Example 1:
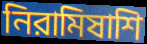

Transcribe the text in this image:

নিরামিষাশি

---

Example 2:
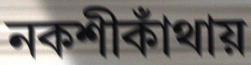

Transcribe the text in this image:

নকশীকাঁথায়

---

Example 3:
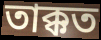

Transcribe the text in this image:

তাক্কত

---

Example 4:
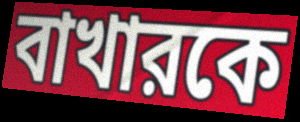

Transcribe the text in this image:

বাখারকে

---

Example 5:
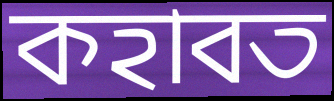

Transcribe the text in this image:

কহাবত